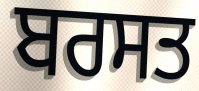
ਬਰਸਤ